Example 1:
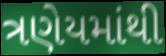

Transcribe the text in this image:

ત્રણેયમાંથી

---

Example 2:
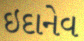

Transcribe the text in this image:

ઇદાનેવ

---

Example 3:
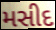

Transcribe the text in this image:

મસીદ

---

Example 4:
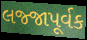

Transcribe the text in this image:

લજ્જાપૂર્વક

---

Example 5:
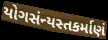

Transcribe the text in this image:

યોગસંન્યસ્તકર્માણં